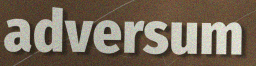
adversum